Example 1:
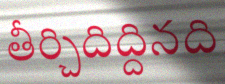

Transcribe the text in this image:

తీర్చిదిద్దినది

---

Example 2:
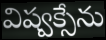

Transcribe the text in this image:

విష్వక్సేను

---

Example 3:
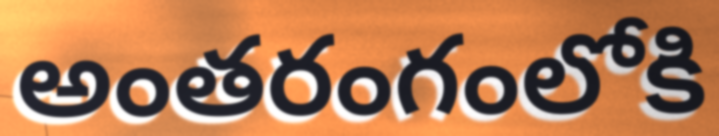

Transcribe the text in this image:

అంతరంగంలోకి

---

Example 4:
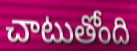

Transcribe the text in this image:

చాటుతోంది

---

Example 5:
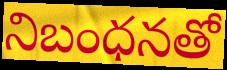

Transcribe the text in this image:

నిబంధనతో